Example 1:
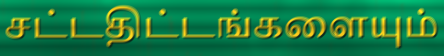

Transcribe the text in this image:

சட்டதிட்டங்களையும்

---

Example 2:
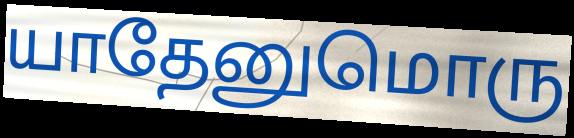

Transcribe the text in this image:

யாதேனுமொரு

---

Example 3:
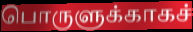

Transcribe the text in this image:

பொருளுக்காகச்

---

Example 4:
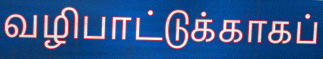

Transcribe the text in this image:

வழிபாட்டுக்காகப்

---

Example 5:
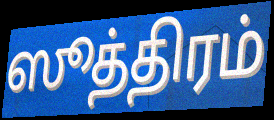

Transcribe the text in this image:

ஸூத்திரம்